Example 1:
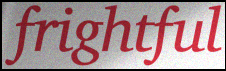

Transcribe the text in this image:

frightful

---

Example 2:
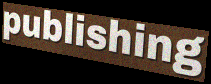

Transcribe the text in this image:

publishing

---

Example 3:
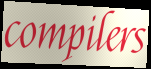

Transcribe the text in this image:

compilers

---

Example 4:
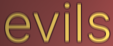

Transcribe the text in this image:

evils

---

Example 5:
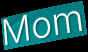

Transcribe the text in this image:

Mom